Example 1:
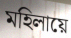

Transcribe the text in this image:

মহিলায়ে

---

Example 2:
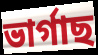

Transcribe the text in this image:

ভাৰ্গাছ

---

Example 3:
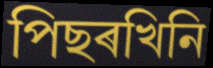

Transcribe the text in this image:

পিছৰখিনি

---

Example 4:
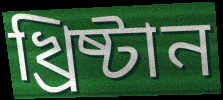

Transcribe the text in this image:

খ্ৰিষ্টান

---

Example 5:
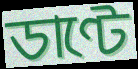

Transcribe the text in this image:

ডাণ্টে